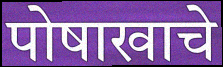
पोषाखाचे